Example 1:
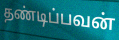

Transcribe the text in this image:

தண்டிப்பவன்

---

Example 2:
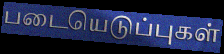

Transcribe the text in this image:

படையெடுப்புகள்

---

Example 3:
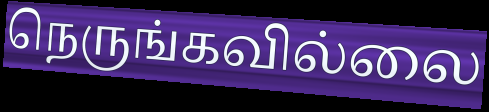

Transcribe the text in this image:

நெருங்கவில்லை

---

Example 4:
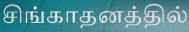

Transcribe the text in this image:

சிங்காதனத்தில்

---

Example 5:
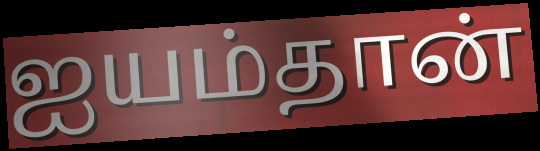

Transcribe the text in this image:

ஐயம்தான்